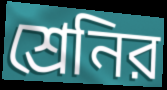
শ্রেনির